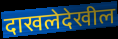
दाखलेदेखील